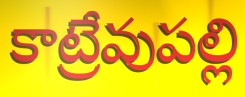
కాట్రేవుపల్లి